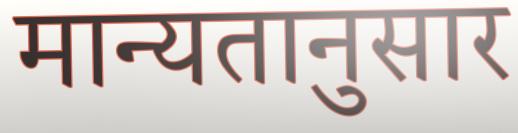
मान्यतानुसार